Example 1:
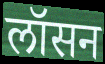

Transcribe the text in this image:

लॉसन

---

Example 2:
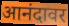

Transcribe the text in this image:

आनंदावर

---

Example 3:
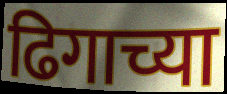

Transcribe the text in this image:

ढिगाच्या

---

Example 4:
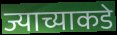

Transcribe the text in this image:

ज्याच्याकडे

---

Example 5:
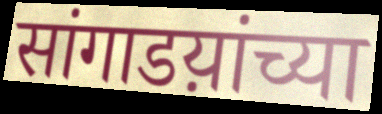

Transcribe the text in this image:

सांगाडय़ांच्या